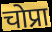
चोप्रा